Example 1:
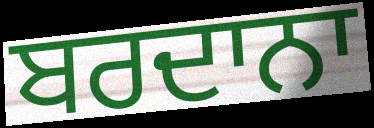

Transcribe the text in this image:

ਬਰਦਾਨਾ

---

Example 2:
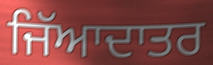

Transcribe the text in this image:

ਜਿੱਆਦਾਤਰ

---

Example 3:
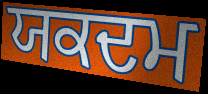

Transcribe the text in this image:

ਯਕਦਮ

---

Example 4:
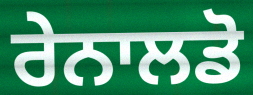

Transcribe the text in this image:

ਰੇਨਾਲਡੋ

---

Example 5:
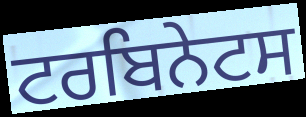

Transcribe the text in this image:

ਟਰਬਿਨੇਟਸ